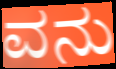
ವನು